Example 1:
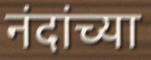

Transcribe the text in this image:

नंदांच्या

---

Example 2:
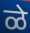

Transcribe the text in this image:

ळे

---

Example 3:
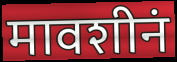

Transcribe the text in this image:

मावशीनं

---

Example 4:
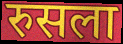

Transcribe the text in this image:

रुसला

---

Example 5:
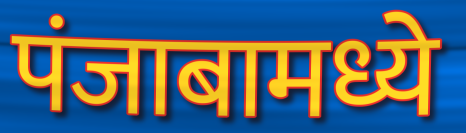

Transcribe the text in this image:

पंजाबामध्ये